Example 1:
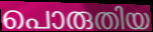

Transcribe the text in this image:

പൊരുതിയ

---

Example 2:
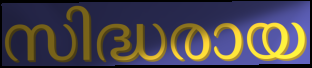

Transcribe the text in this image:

സിദ്ധരായ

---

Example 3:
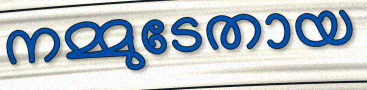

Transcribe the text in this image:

നമ്മുടേതായ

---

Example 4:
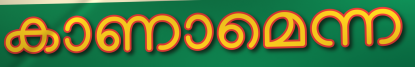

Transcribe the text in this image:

കാണാമെന്ന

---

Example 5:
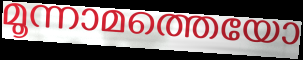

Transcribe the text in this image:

മൂന്നാമത്തെയോ